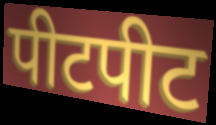
पीटपीट